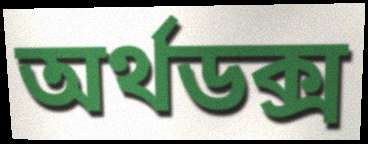
অর্থডক্স